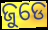
ଜୁଡେ